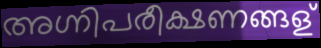
അഗ്നിപരീക്ഷണങ്ങള്